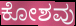
ಕೋಶವು